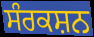
ਸੰਰਕਸ਼ਨ